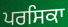
ਪਰਸਿਕਾ